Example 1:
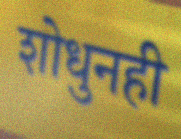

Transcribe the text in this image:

शोधुनही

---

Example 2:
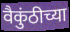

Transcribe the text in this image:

वैकुंठीच्या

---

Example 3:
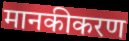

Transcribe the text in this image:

मानकीकरण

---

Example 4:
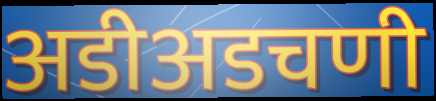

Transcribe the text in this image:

अडीअडचणी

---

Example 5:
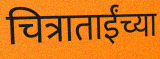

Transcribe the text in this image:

चित्राताईंच्या